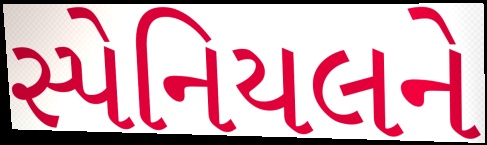
સ્પેનિયલને